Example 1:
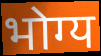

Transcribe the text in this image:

भोग्य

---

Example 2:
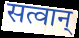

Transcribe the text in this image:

सत्वान्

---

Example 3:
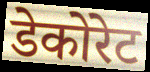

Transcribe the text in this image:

डेकोरेट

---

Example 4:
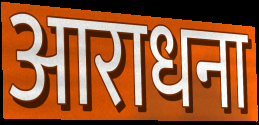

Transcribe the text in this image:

आराधना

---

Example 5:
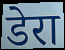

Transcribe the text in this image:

डेरा